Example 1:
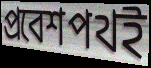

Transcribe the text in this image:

প্রবেশপথই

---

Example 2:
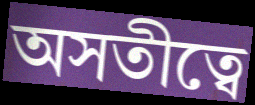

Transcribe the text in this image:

অসতীত্বে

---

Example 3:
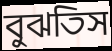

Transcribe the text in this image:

বুঝতিস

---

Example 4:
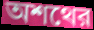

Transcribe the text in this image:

অশথের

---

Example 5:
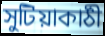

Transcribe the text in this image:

সুটিয়াকাঠী